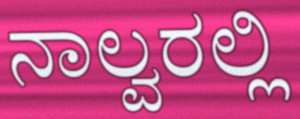
ನಾಲ್ವರಲ್ಲಿ